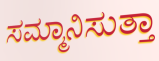
ಸಮ್ಮಾನಿಸುತ್ತಾ